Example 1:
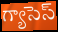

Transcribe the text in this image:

గ్యాసెస్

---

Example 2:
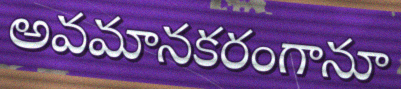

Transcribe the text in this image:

అవమానకరంగానూ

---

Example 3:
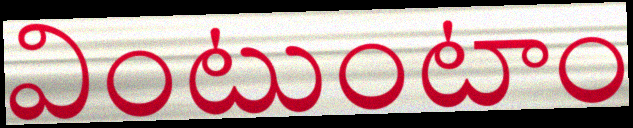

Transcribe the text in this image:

వింటుంటాం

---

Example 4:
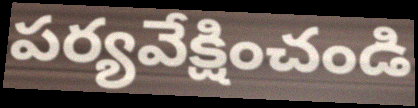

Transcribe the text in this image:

పర్యవేక్షించండి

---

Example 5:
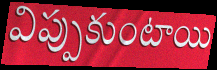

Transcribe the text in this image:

విప్పుకుంటాయి